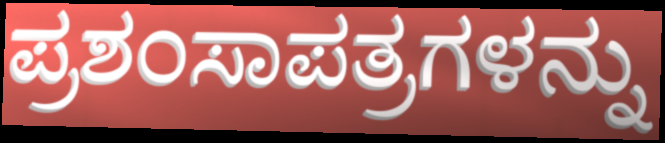
ಪ್ರಶಂಸಾಪತ್ರಗಳನ್ನು